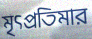
মৃৎপ্রতিমার